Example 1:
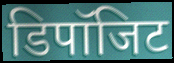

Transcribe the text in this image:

डिपॉजिट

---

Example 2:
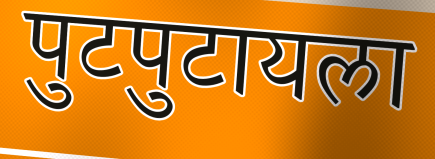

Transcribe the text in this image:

पुटपुटायला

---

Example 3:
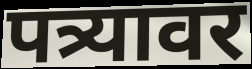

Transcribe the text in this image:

पत्र्यावर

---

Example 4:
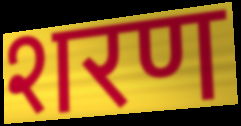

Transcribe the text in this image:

शरण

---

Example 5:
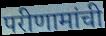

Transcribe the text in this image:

परीणामांची